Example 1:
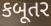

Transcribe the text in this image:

કબૂતર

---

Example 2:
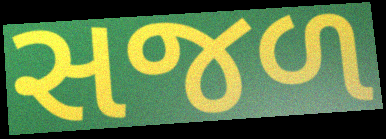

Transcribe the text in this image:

સજળ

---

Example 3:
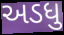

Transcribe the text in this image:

અડધુ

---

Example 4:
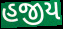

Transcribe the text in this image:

હજીય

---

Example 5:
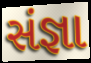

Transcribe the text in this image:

સંજ્ઞા